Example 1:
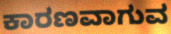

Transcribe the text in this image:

ಕಾರಣವಾಗುವ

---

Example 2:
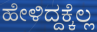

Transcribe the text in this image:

ಹೇಳಿದ್ದಕ್ಕೆಲ್ಲ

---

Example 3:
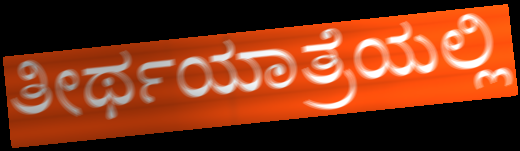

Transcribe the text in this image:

ತೀರ್ಥಯಾತ್ರೆಯಲ್ಲಿ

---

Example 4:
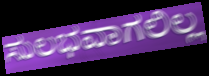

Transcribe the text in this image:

ಸುಲಭವಾಗಲಿಲ್ಲ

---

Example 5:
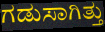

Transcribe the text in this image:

ಗಡುಸಾಗಿತ್ತು